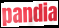
pandia